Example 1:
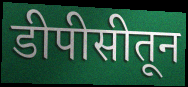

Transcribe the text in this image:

डीपीसीतून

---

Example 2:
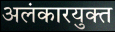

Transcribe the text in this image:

अलंकारयुक्त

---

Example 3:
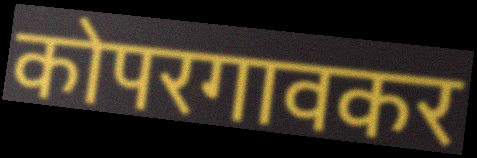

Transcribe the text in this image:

कोपरगावकर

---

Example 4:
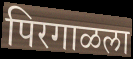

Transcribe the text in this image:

पिरगाळला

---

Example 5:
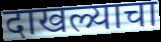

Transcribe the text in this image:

दाखल्याचा